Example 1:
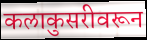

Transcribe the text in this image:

कलाकुसरीवरून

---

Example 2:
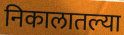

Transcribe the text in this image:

निकालातल्या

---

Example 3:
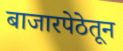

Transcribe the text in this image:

बाजारपेठेतून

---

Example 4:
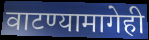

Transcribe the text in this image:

वाटण्यामागेही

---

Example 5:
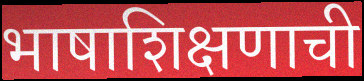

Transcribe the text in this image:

भाषाशिक्षणाची